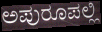
ಅಪುರೂಪಲ್ಲಿ